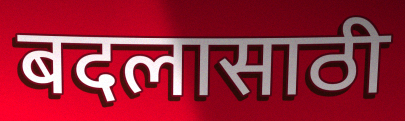
बदलासाठी